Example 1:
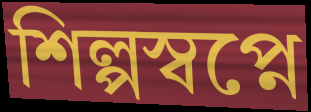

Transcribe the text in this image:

শিল্পস্বপ্নে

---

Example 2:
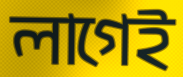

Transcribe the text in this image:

লাগেই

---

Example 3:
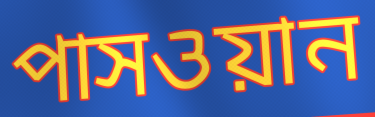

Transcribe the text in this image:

পাসওয়ান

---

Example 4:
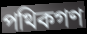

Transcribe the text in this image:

পথিকগণ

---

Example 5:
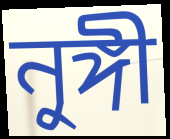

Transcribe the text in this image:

নুঙ্গী